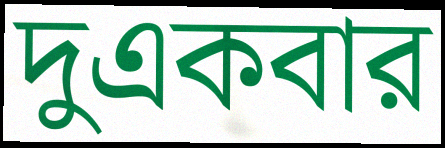
দুএকবার